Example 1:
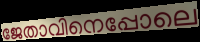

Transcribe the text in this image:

ജേതാവിനെപ്പോലെ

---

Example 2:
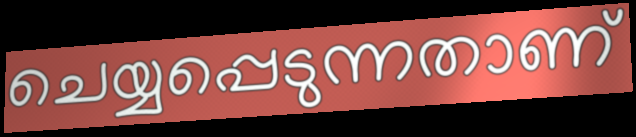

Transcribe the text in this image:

ചെയ്യപ്പെടുന്നതാണ്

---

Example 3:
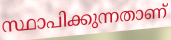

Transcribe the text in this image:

സ്ഥാപിക്കുന്നതാണ്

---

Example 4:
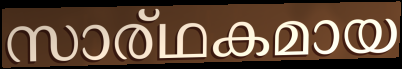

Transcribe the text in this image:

സാര്ഥകമായ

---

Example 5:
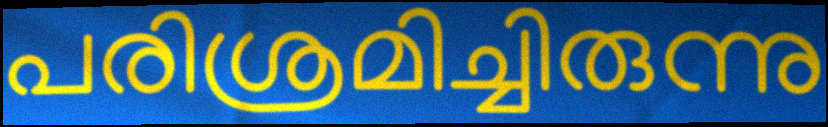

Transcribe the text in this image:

പരിശ്രമിച്ചിരുന്നു